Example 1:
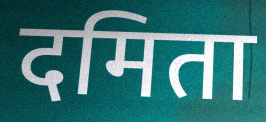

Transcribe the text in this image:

दमिता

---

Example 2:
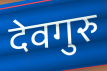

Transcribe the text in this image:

देवगुरु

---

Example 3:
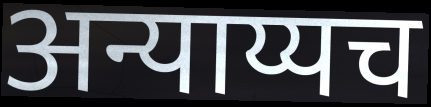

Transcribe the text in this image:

अन्याय्यच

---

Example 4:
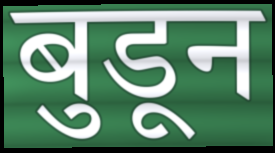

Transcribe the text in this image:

बुडून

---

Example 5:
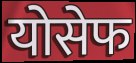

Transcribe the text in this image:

योसेफ